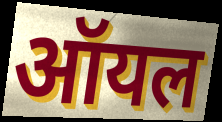
ऑयल